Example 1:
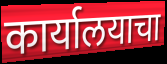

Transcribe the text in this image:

कार्यालयाचा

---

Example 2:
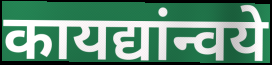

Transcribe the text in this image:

कायद्यांन्वये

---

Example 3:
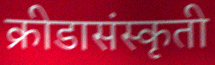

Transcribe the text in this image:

क्रीडासंस्कृती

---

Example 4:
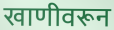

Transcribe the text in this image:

खाणीवरून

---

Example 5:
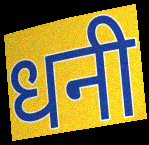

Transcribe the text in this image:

धनी